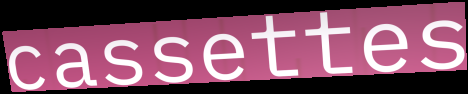
cassettes